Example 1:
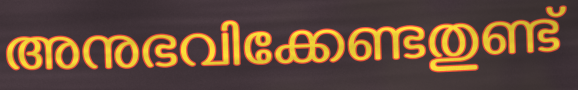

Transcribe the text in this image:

അനുഭവിക്കേണ്ടതുണ്ട്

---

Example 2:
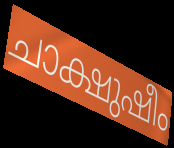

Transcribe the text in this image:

ചാക്ഷുഷീം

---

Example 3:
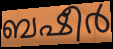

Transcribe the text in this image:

ബഷീർ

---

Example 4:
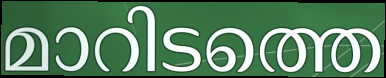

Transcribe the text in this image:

മാറിടത്തെ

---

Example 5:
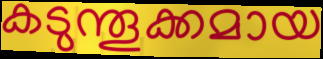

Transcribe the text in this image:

കടുന്തൂക്കമായ